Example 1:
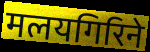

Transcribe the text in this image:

मलयगिरिने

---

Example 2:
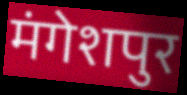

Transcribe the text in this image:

मंगेशपुर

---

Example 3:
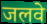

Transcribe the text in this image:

जलवे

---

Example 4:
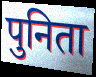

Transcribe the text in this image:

पुनिता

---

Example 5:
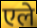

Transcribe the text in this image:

एले